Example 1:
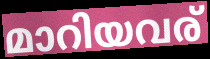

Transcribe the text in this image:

മാറിയവര്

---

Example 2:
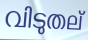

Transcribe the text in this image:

വിടുതല്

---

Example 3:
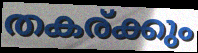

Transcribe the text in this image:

തകര്ക്കും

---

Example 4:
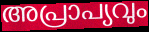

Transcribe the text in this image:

അപ്രാപ്യവും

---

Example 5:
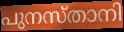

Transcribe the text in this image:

പുനസ്താനി